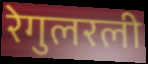
रेगुलरली